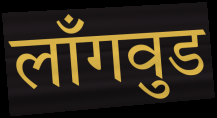
लाँगवुड